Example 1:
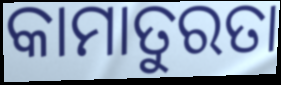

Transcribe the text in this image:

କାମାତୁରତା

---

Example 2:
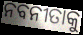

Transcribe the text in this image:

ନବନୀତାକୁ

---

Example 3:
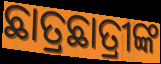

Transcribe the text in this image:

ଛାତ୍ରଛାତ୍ରୀଙ୍କ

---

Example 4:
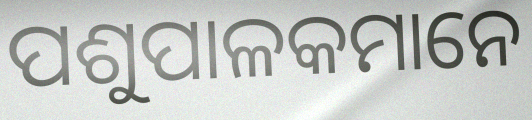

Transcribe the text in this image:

ପଶୁପାଳକମାନେ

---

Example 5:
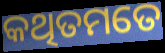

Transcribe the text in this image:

କଥିତମତେ